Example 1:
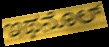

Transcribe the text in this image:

ಇಥನೊಲ್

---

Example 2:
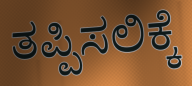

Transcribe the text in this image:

ತಪ್ಪಿಸಲಿಕ್ಕೆ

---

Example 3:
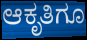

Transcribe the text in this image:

ಆಕೃತಿಗೂ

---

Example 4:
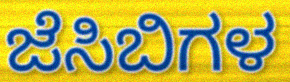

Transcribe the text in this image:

ಜೆಸಿಬಿಗಳ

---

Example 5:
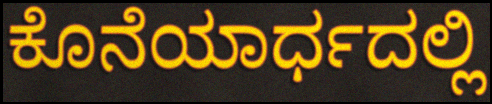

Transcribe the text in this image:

ಕೊನೆಯಾರ್ಧದಲ್ಲಿ